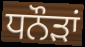
ਧਨੌੜਾਂ